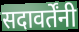
सदावर्तेंनी